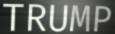
TRUMP